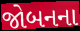
જોબનના